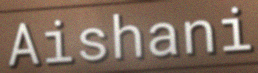
Aishani